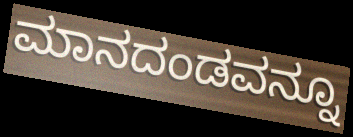
ಮಾನದಂಡವನ್ನೂ